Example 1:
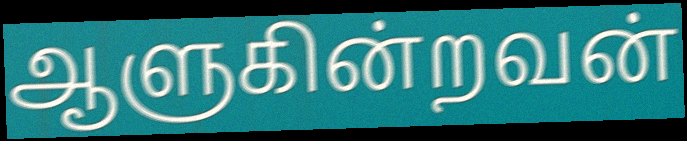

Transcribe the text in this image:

ஆளுகின்றவன்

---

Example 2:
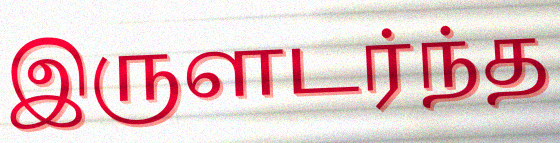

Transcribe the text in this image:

இருளடர்ந்த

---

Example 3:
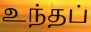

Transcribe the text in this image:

உந்தப்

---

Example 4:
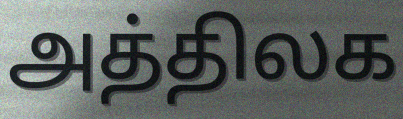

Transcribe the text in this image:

அத்திலக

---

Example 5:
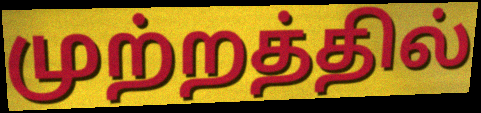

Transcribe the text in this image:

முற்றத்தில்